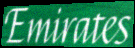
Emirates